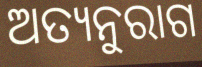
ଅତ୍ୟନୁରାଗ